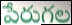
పేరుగల